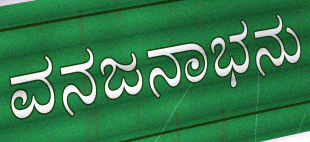
ವನಜನಾಭನು